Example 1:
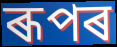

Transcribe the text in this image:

ৰূপৰ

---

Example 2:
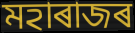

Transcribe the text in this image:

মহাৰাজৰ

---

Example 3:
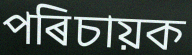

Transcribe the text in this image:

পৰিচায়ক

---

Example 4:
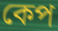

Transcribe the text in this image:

কেপ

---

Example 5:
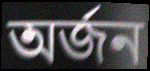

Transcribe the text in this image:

অৰ্জন